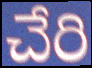
చేరి